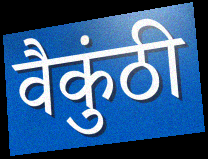
वैकुंठी